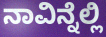
ನಾವಿನ್ನೆಲ್ಲಿ